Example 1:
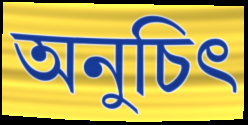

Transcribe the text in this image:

অনুচিৎ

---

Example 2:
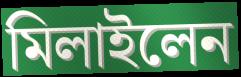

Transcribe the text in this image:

মিলাইলেন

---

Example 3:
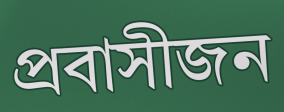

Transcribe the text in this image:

প্রবাসীজন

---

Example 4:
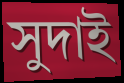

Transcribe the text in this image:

সুদাই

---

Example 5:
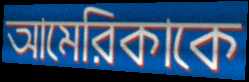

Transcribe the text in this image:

আমেরিকাকে